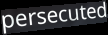
persecuted